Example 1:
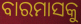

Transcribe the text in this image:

ବାରମାସକୁ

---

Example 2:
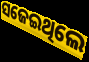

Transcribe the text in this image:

ସଜେଇଥିଲେ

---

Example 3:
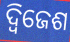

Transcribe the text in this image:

ଦ୍ୱିଜେଶ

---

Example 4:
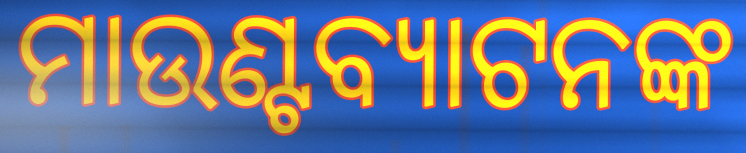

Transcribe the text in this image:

ମାଉଣ୍ଟବ୍ୟାଟନଙ୍କ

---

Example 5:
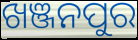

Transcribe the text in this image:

ଖଞ୍ଜନପୁର